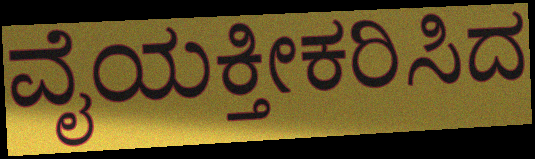
ವೈಯಕ್ತೀಕರಿಸಿದ